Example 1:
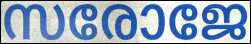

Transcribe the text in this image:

സരോജേ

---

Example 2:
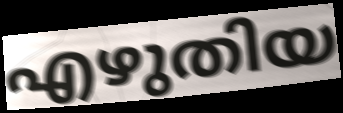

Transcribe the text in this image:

എഴുതിയ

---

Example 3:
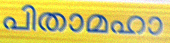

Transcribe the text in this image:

പിതാമഹാ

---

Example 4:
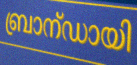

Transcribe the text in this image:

ബ്രാന്ഡായി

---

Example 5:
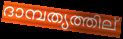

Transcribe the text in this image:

ദാമ്പത്യത്തില്